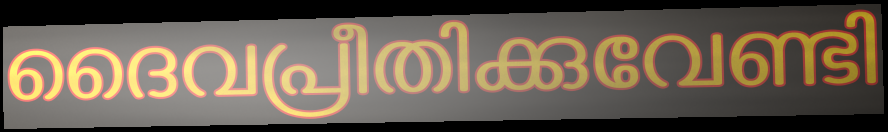
ദൈവപ്രീതിക്കുവേണ്ടി